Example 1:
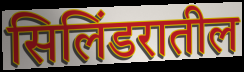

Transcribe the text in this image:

सिलिंडरातील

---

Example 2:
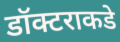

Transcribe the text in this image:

डॉक्टराकडे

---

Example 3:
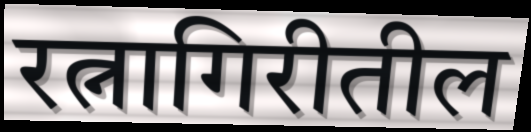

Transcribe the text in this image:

रत्नागिरीतील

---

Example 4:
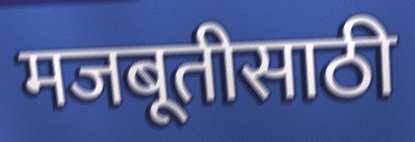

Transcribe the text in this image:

मजबूतीसाठी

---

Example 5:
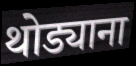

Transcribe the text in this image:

थोड्याना